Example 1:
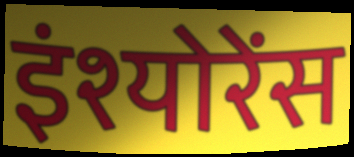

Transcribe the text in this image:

इंश्योरेंस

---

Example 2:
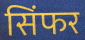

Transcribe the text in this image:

सिंफर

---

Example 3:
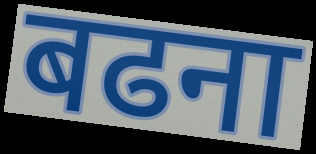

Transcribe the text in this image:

बढना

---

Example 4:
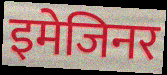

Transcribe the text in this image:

इमेजिनर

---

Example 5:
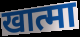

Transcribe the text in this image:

खात्मा